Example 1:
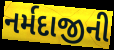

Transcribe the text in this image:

નર્મદાજીની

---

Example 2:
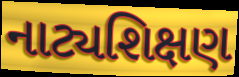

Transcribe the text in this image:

નાટ્યશિક્ષણ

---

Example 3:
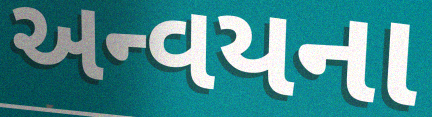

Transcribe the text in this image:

અન્વયના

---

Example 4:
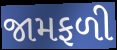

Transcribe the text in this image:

જામફળી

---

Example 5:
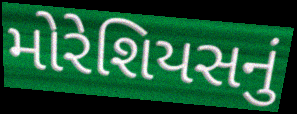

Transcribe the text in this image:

મોરેશિયસનું